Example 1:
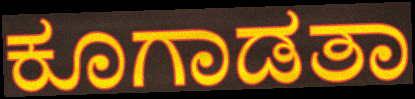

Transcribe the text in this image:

ಕೂಗಾಡತಾ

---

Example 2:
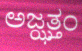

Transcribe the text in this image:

ಅಜ್ಝತ್ತಂ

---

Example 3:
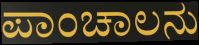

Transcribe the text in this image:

ಪಾಂಚಾಲನು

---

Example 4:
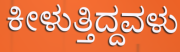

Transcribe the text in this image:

ಕೀಳುತ್ತಿದ್ದವಳು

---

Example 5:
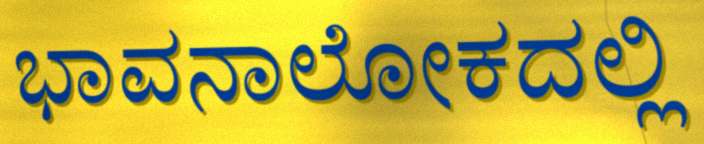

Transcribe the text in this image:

ಭಾವನಾಲೋಕದಲ್ಲಿ